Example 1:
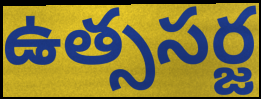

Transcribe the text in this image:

ఉత్ససర్జ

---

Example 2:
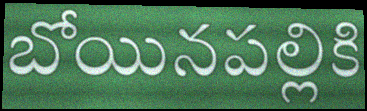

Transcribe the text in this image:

బోయినపల్లికి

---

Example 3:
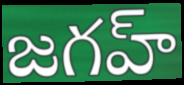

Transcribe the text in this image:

జగహ్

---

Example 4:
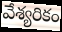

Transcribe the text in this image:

వేశ్యరికం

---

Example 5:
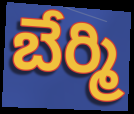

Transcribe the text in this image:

బేర్మి